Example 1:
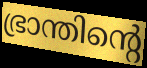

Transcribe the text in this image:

ഭ്രാന്തിന്റെ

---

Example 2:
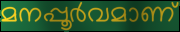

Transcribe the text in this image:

മനപ്പൂർവമാണ്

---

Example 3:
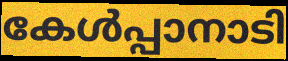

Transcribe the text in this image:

കേൾപ്പാനാടി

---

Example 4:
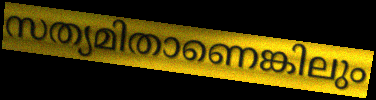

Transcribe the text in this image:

സത്യമിതാണെങ്കിലും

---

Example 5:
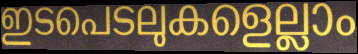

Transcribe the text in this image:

ഇടപെടലുകളെല്ലാം